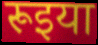
रूइया